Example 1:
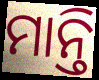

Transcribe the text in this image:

ମାନ୍ତି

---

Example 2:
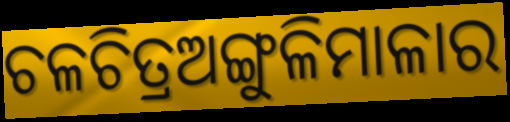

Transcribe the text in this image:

ଚଳଚିତ୍ରଅଙ୍ଗୁଳିମାଳାର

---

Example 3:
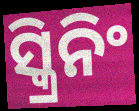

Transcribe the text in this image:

ସ୍କ୍ରିନିଂ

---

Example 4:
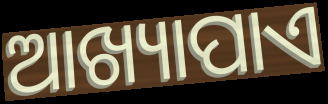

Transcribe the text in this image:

ଆଖ୍ୟାପାଏ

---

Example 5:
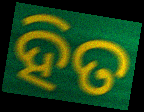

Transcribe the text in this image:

ହିତ